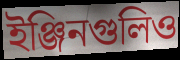
ইঞ্জিনগুলিও